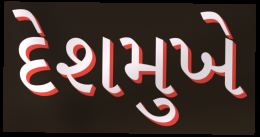
દેશમુખે